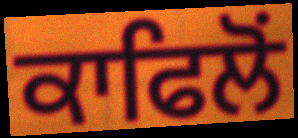
ਕਾਫਿਲੋਂ